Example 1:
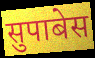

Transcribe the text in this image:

सुपाबेस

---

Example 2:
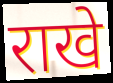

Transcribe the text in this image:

राखे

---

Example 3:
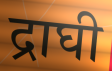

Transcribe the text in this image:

द्राघी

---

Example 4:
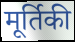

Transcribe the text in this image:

मूर्तिकी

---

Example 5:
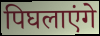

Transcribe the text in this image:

पिघलाएंगे